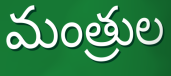
మంత్రుల